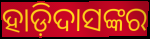
ହାଡ଼ିଦାସଙ୍କର